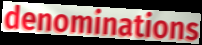
denominations